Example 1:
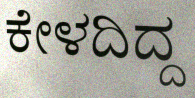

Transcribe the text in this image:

ಕೇಳದಿದ್ದ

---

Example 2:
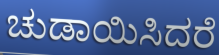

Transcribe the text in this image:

ಚುಡಾಯಿಸಿದರೆ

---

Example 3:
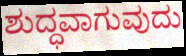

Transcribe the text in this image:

ಶುದ್ಧವಾಗುವುದು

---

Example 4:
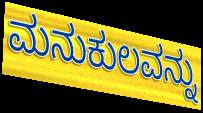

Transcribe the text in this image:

ಮನುಕುಲವನ್ನು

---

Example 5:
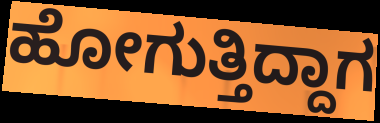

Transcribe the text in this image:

ಹೋಗುತ್ತಿದ್ದಾಗ